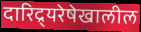
दारिद्र्यरेषेखालील